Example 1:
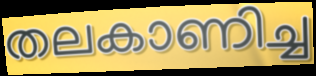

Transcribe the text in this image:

തലകാണിച്ച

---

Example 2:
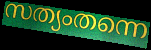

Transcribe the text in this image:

സത്യംതന്നെ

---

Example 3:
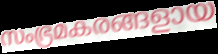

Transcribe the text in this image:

സംഭ്രമകരങ്ങളായ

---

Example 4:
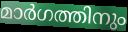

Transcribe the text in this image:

മാർഗത്തിനും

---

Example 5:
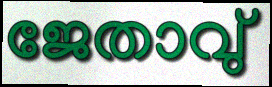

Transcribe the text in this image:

ജേതാവു്